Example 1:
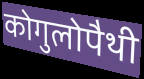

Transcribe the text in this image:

कोगुलोपैथी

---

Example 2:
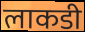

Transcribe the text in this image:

लाकडी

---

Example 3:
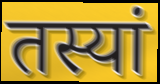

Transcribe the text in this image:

तस्यां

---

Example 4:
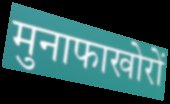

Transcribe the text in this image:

मुनाफाखोरों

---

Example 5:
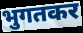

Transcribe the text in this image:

भुगतकर